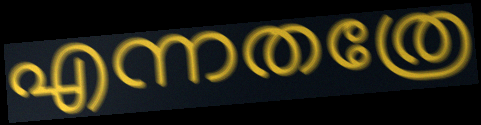
എന്നതത്രേ